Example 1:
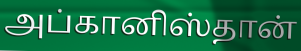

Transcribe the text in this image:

அப்கானிஸ்தான்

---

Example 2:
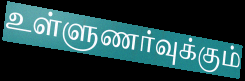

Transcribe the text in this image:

உள்ளுணர்வுக்கும்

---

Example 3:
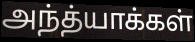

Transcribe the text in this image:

அந்த்யாக்கள்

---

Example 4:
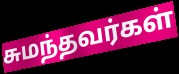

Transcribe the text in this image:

சுமந்தவர்கள்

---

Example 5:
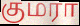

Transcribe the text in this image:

குமரா